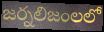
జర్నలిజంలలో